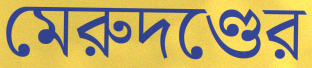
মেরুদণ্ডের